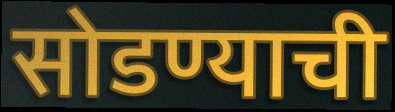
सोडण्याची